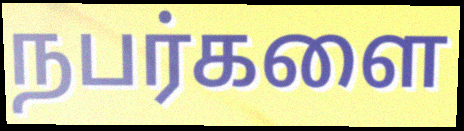
நபர்களை